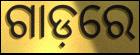
ଗାଡ଼ରେ